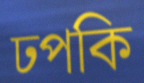
ঢপকি